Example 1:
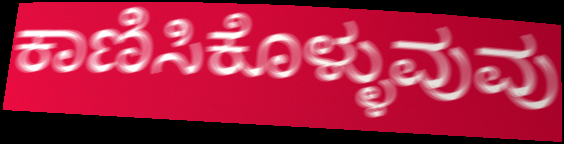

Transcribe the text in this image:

ಕಾಣಿಸಿಕೊಳ್ಳುವುವು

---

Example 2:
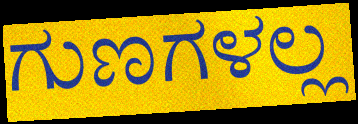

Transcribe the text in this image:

ಗುಣಗಳಲ್ಲ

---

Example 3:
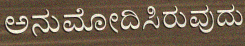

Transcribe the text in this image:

ಅನುಮೋದಿಸಿರುವುದು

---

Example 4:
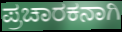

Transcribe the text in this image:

ಪ್ರಚಾರಕನಾಗಿ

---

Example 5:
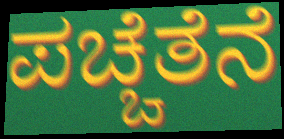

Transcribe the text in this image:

ಪಚ್ಚೆತೆನೆ